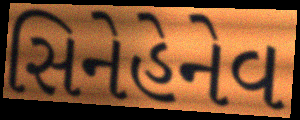
સિનેહેનેવ